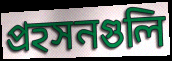
প্রহসনগুলি